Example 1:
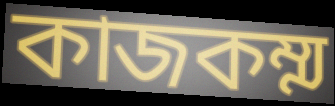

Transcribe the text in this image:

কাজকম্ম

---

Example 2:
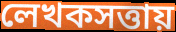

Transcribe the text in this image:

লেখকসত্তায়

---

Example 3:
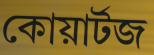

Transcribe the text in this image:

কোয়ার্টজ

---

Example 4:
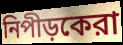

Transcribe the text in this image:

নিপীড়কেরা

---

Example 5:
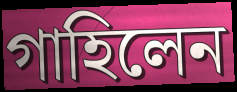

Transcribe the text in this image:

গাহিলেন